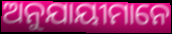
ଅନୁଯାୟୀମାନେ